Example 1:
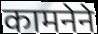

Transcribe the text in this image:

कामनेने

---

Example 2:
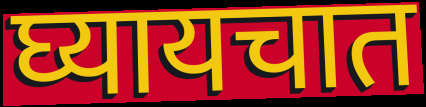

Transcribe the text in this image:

घ्यायचात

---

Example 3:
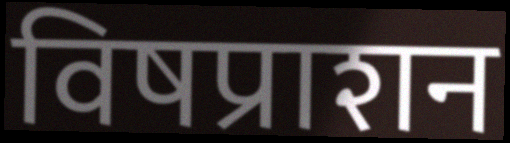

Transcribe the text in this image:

विषप्राशन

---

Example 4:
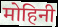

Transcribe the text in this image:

मोहिनी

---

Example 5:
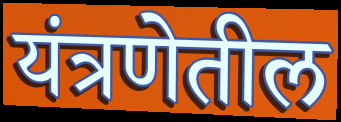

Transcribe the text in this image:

यंत्रणेतील